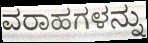
ವರಾಹಗಳನ್ನು